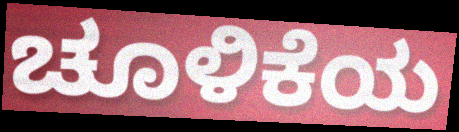
ಚೂಳಿಕೆಯ